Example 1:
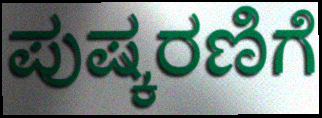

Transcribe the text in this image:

ಪುಷ್ಕರಣಿಗೆ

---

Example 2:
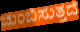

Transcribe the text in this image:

ಚುಂಬಿಸುತ್ತದೆ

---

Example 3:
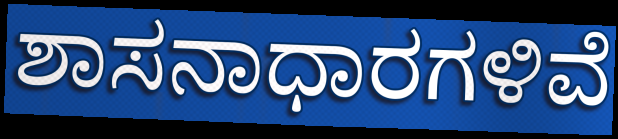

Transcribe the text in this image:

ಶಾಸನಾಧಾರಗಳಿವೆ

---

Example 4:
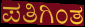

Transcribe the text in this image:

ಪತಿಗಿಂತ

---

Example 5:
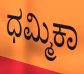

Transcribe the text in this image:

ಧಮ್ಮಿಕಾ